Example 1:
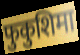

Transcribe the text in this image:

फुकुशिमा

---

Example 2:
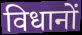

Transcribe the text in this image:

विधानों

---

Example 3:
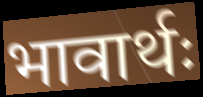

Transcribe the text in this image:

भावार्थः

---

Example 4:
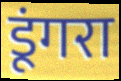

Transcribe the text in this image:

डूंगरा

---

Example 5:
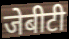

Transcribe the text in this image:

जेबीटी